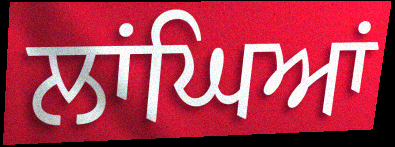
ਲਾਂਘਿਆਂ